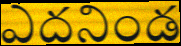
ఎదనిండ